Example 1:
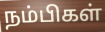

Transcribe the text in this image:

நம்பிகள்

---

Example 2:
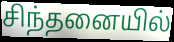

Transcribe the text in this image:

சிந்தனையில்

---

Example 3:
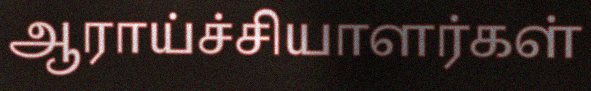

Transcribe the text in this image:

ஆராய்ச்சியாளர்கள்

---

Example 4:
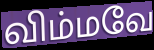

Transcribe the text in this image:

விம்மவே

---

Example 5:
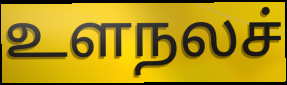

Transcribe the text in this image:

உளநலச்